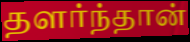
தளர்ந்தான்